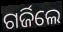
ଗର୍ଜିଲେ